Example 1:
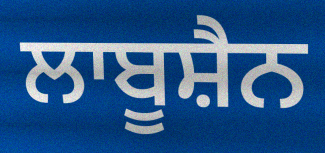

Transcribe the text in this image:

ਲਾਬੂਸ਼ੈਨ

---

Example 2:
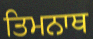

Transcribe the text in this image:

ਤਿਮਨਾਥ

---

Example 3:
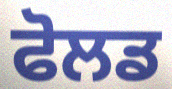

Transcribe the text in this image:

ਫੋਲਡ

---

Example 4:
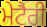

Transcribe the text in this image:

ਮੇਟੈਰੀ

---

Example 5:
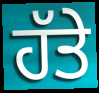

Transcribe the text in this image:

ਹੱਤੇ